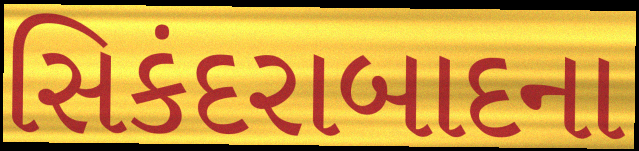
સિકંદરાબાદના